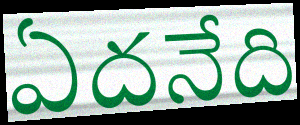
ఏదనేది